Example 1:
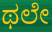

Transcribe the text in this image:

ಥಲೇ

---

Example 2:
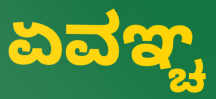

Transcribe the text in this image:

ಏವಞ್ಚ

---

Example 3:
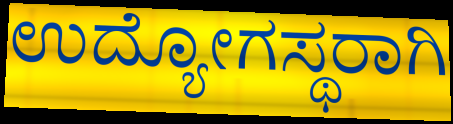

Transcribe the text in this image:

ಉದ್ಯೋಗಸ್ಥರಾಗಿ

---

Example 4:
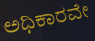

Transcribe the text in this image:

ಅಧಿಕಾರವೇ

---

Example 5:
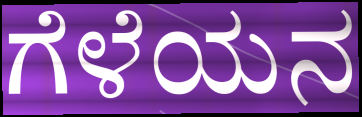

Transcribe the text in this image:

ಗೆಳೆಯನ